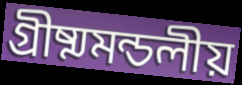
গ্রীষ্মমন্ডলীয়